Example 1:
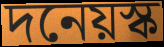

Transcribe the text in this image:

দনেয়স্ক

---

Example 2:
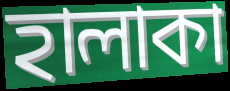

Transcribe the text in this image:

হালাকা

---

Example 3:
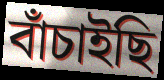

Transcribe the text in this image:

বাঁচাইছি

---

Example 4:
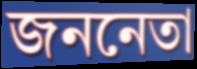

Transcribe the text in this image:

জননেতা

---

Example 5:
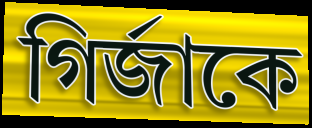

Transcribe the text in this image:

গির্জাকে